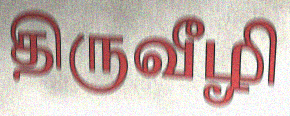
திருவீழி